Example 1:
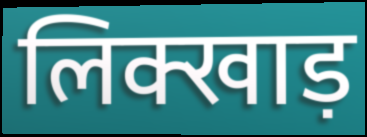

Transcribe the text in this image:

लिक्खाड़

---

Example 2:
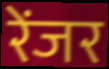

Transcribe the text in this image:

रेंजर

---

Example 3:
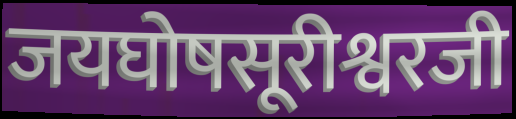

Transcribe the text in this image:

जयघोषसूरीश्वरजी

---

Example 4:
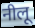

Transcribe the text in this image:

नीलू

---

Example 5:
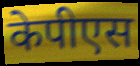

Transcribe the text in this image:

केपीएस